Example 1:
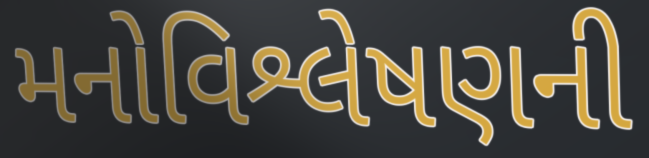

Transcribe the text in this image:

મનોવિશ્લેષણની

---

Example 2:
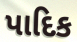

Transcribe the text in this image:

પાદિક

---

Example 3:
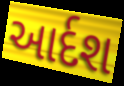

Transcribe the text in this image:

આર્દશ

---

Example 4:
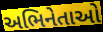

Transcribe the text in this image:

અભિનેતાઓ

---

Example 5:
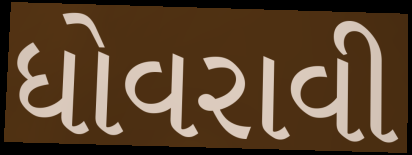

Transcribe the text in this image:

ધોવરાવી